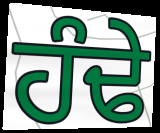
ਹੰਢੇ